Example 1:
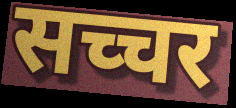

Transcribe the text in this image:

सच्चर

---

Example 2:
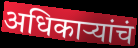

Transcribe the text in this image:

अधिकाऱ्यांचं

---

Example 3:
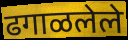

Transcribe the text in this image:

ढगाळलेले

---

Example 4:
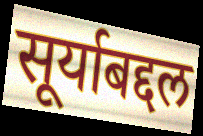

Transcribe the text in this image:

सूर्याबद्दल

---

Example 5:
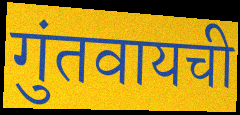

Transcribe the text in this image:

गुंतवायची